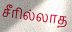
சீரில்லாத